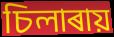
চিলাৰায়